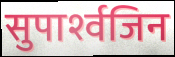
सुपार्श्वजिन